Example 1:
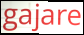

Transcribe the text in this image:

gajare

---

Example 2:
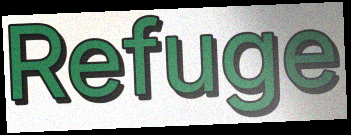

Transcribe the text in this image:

Refuge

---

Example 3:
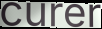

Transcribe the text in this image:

curer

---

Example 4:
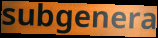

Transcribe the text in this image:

subgenera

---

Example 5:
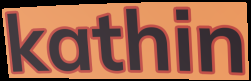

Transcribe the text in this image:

kathin